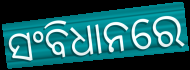
ସଂବିଧାନରେ